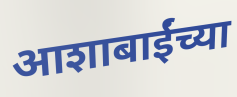
आशाबाईंच्या